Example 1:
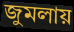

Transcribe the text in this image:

জুমলায়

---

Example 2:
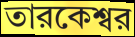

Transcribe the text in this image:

তারকেশ্বর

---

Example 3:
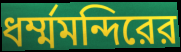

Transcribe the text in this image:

ধর্ম্মমন্দিরের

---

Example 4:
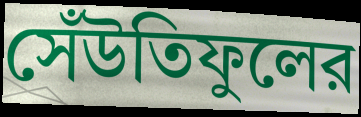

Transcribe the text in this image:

সেঁউতিফুলের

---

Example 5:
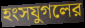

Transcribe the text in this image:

হংসযুগলের